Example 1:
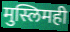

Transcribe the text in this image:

मुस्लिमही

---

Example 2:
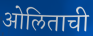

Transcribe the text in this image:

ओलिताची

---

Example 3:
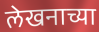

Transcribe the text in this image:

लेखनाच्या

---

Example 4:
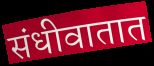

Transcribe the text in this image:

संधीवातात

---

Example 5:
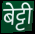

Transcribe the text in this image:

बेट्टी